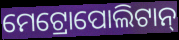
ମେଟ୍ରୋପୋଲିଟାନ୍